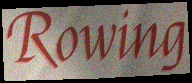
Rowing